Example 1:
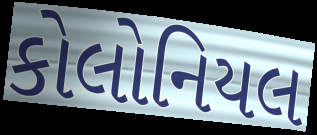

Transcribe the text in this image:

કોલોનિયલ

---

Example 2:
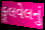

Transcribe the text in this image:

ફૂલવેલનું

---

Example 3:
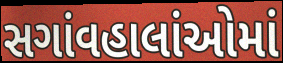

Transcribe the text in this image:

સગાંવહાલાંઓમાં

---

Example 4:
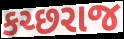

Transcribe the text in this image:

કચ્છરાજ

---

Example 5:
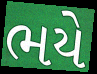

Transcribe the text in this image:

ભયે